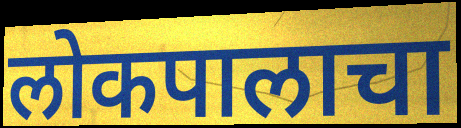
लोकपालाचा